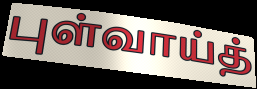
புள்வாய்த்